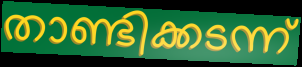
താണ്ടിക്കടന്ന്